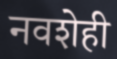
नवशेही